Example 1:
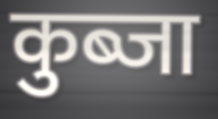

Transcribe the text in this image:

कुब्जा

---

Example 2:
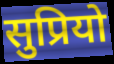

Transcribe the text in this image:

सुप्रियो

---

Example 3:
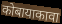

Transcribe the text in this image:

कोबायाकावा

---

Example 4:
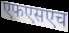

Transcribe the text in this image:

एफएसएच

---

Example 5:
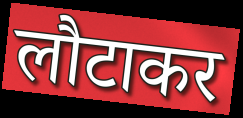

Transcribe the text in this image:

लौटाकर